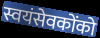
स्वयंसेवकोंको